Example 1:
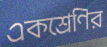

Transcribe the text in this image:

একশ্রেণির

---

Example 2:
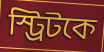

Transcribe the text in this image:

স্ট্রিটকে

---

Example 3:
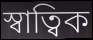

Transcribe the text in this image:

স্বাত্বিক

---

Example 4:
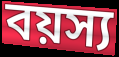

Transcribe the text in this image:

বয়স্য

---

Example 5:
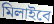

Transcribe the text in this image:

মিলাইবে